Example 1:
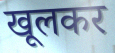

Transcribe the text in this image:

खूलकर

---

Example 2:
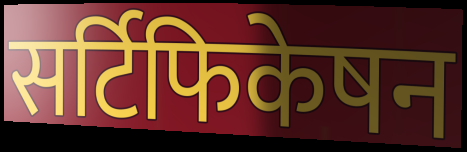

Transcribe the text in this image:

सर्टिफिकेषन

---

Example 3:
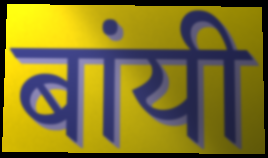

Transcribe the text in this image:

बांयी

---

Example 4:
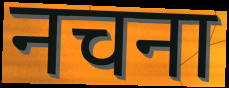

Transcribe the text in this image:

नचना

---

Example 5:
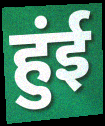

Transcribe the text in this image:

हुंई